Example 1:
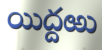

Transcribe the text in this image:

యిద్దఱు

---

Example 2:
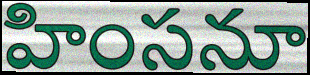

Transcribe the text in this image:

హింసనూ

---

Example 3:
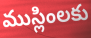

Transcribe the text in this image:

ముస్లింలకు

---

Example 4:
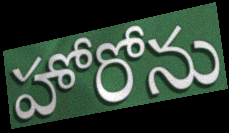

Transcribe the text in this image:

హోరోను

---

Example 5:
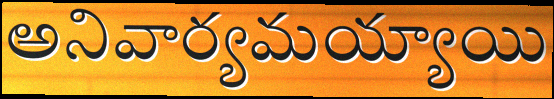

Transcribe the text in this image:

అనివార్యమయ్యాయి